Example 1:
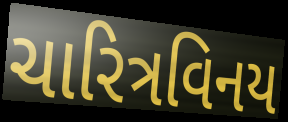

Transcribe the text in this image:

ચારિત્રવિનય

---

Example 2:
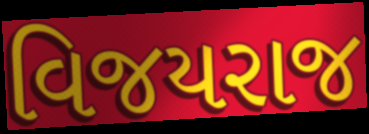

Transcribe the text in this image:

વિજયરાજ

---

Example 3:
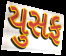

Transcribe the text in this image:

યુસફ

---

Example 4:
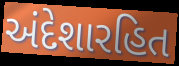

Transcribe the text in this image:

અંદેશારહિત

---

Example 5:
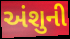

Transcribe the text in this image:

અંશુની